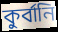
কুর্বানি